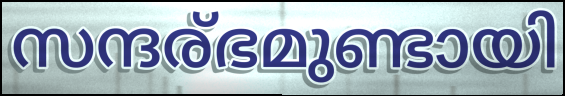
സന്ദര്ഭമുണ്ടായി